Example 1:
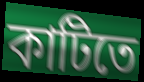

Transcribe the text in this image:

কাটিতে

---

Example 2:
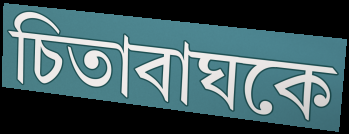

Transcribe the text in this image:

চিতাবাঘকে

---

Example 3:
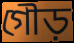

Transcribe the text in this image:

গৌড়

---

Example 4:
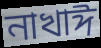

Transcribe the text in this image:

নাখাঈ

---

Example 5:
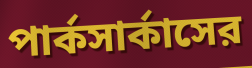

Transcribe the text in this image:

পার্কসার্কাসের